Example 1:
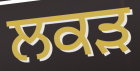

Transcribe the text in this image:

ਲਕੜ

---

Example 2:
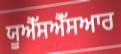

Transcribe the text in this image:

ਯੂਐੱਸਐੱਸਆਰ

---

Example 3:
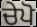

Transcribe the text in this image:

ਚੇਪੋ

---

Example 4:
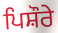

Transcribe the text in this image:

ਪਿਸ਼ੌਰੇ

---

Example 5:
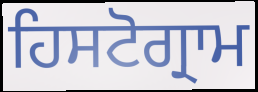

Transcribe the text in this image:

ਹਿਸਟੋਗ੍ਰਾਮ